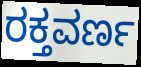
ರಕ್ತವರ್ಣ